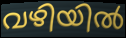
വഴിയിൽ